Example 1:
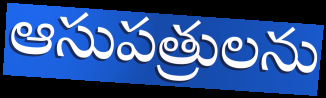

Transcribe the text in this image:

ఆసుపత్రులను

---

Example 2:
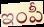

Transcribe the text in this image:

ఇంపీ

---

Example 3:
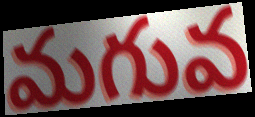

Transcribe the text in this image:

మగువ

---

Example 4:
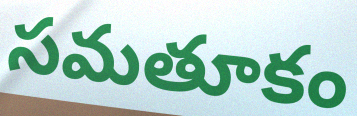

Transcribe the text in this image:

సమతూకం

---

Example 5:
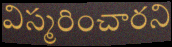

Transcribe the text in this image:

విస్మరించారని